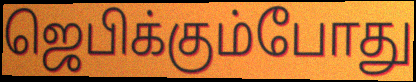
ஜெபிக்கும்போது